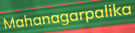
Mahanagarpalika